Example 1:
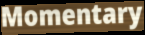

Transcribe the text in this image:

Momentary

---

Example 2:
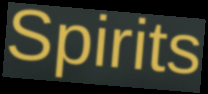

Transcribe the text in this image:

Spirits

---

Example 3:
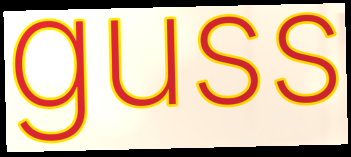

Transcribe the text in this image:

guss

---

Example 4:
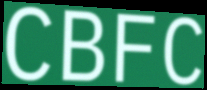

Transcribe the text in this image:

CBFC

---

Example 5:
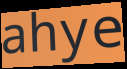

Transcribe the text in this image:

ahye